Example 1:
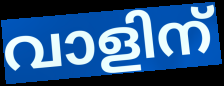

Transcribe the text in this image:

വാളിന്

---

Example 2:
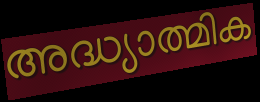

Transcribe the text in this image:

അദ്ധ്യാത്മിക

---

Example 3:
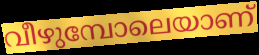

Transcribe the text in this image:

വീഴുമ്പോലെയാണ്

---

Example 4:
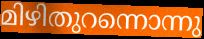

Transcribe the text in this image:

മിഴിതുറന്നൊന്നു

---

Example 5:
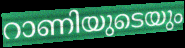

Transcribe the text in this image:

റാണിയുടെയും